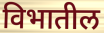
विभातील